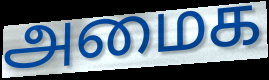
அமைக